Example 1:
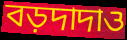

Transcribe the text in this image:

বড়দাদাও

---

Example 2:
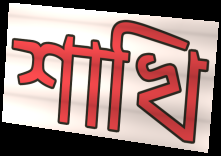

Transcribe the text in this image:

শাখি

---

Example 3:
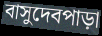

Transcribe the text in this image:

বাসুদেবপাড়া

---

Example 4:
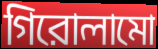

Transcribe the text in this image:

গিরোলামো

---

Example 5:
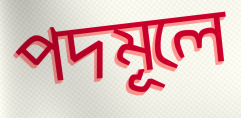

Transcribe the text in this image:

পদমূলে